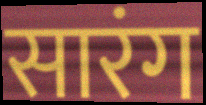
सारंग